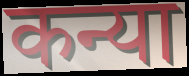
कन्या